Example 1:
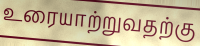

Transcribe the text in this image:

உரையாற்றுவதற்கு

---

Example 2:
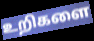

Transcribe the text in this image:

உறிகளை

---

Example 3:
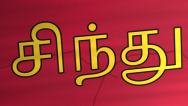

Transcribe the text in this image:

சிந்து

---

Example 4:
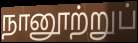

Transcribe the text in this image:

நானூற்றுப்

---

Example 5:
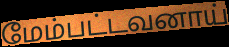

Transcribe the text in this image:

மேம்பட்டவனாய்